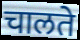
चालते